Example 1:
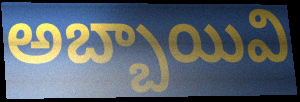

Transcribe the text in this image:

అబ్బాయివి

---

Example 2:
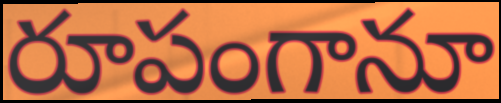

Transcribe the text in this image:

రూపంగానూ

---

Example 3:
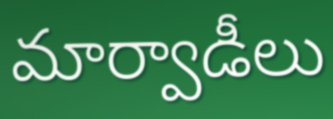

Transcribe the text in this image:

మార్వాడీలు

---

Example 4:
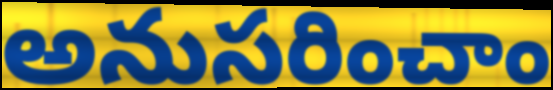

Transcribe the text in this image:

అనుసరించాం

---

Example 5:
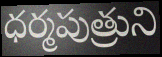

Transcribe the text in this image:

ధర్మపుత్రుని